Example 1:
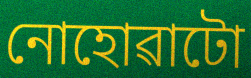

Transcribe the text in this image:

নোহোৱাটো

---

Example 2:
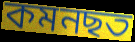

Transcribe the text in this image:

কমনছত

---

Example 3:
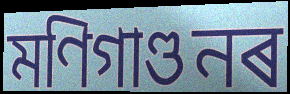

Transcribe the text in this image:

মণিগাণ্ডনৰ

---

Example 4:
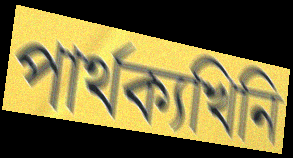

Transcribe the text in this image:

পাৰ্থক্যখিনি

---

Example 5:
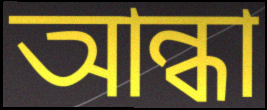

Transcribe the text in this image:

আন্ধা